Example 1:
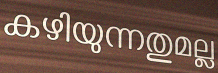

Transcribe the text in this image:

കഴിയുന്നതുമല്ല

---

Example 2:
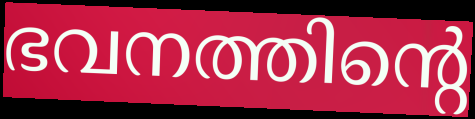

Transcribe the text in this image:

ഭവനത്തിന്റെ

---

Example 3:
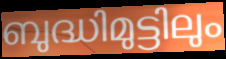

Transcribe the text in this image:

ബുദ്ധിമുട്ടിലും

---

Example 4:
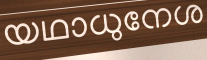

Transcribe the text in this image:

യഥാധുനേശ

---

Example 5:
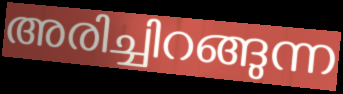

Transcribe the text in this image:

അരിച്ചിറങ്ങുന്ന